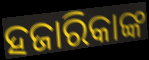
ହଜାରିକାଙ୍କ